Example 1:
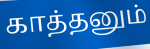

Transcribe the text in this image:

காத்தனும்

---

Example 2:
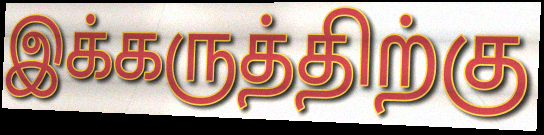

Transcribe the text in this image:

இக்கருத்திற்கு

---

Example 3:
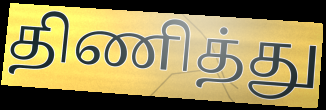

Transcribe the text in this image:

திணித்து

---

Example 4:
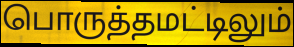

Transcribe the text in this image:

பொருத்தமட்டிலும்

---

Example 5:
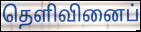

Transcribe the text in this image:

தெளிவினைப்